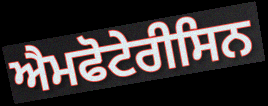
ਐਮਫੋਟੇਰੀਸਿਨ